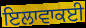
ਇਲਾਵਾਕਈ